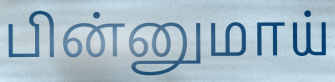
பின்னுமாய்